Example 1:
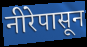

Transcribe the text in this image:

नीरेपासून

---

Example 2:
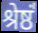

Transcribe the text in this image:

श्रेष्ठं॑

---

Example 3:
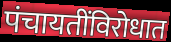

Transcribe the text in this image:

पंचायतींविरोधात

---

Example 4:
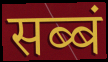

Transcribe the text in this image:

सब्बं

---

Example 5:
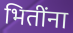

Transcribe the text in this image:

भितींना